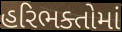
હરિભક્તોમાં